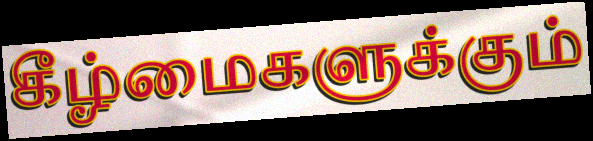
கீழ்மைகளுக்கும்